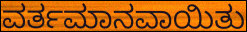
ವರ್ತಮಾನವಾಯಿತು